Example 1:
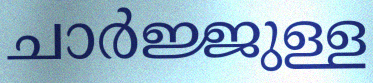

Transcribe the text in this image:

ചാർജ്ജുള്ള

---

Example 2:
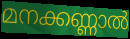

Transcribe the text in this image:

മനക്കണ്ണാൽ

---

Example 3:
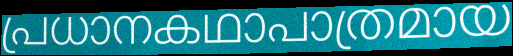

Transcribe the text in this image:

പ്രധാനകഥാപാത്രമായ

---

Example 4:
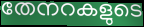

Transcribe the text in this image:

തേനറകളുടെ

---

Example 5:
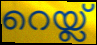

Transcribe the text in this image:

റെയ്ല്